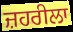
ਜ਼ਹਰੀਲਾ